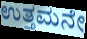
ಉತ್ತಮನೇ